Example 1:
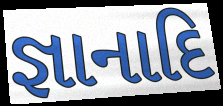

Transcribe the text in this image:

જ્ઞાનાદિ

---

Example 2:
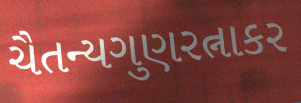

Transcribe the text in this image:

ચૈતન્યગુણરત્નાકર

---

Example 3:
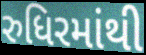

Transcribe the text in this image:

રુધિરમાંથી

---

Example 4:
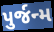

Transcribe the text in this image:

પુર્જન્મ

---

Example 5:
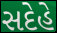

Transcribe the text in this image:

સદેહે